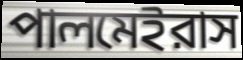
পালমেইরাস